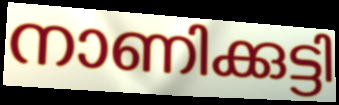
നാണിക്കുട്ടി